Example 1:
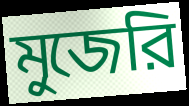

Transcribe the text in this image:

মুজেরি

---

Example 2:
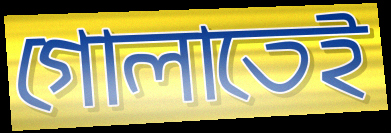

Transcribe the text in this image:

গোলাতেই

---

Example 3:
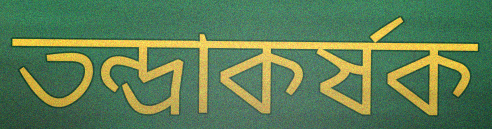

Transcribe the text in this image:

তন্দ্রাকর্ষক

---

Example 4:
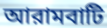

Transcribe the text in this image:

আরামবাটি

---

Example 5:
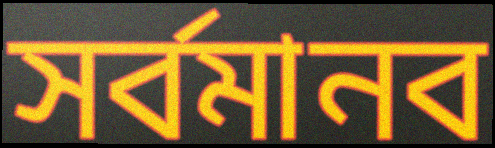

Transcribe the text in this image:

সর্বমানব